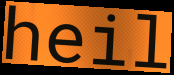
heil